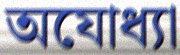
অযোধ্যা